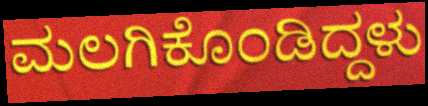
ಮಲಗಿಕೊಂಡಿದ್ದಳು